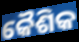
କୈଶିକ